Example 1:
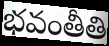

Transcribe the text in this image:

భవంతీతి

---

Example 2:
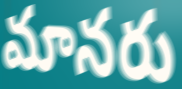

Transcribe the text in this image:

మానరు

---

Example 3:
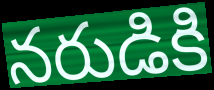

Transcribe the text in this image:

నరుడికి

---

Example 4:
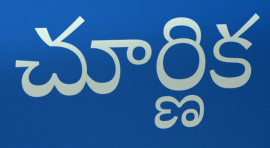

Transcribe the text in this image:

చూర్ణిక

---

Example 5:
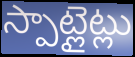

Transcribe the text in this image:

స్పాట్లైట్లు